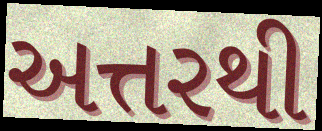
અત્તરથી